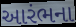
આરંભના